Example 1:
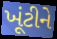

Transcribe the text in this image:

ખૂંટીને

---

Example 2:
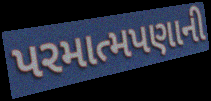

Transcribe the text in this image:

પરમાત્મપણાની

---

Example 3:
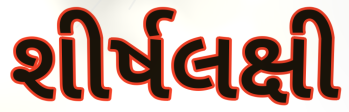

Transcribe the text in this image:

શીર્ષલક્ષી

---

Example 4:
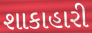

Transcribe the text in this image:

શાકાહારી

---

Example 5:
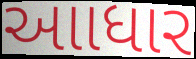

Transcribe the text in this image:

આાધાર